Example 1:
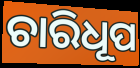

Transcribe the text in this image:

ଚାରିଧୂପ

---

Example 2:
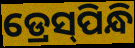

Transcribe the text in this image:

ଡ୍ରେସ୍‌ପିନ୍ଧି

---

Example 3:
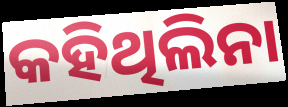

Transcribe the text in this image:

କହିଥିଲିନା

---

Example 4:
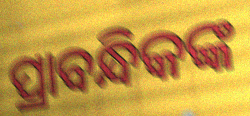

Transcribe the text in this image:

ପ୍ରାବନ୍ଧିକଙ୍କ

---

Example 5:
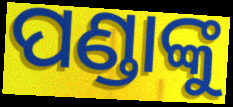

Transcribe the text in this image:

ପଣ୍ଡାଙ୍କୁ